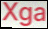
Xga